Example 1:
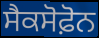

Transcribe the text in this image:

ਸੈਕਸੋਫ਼ੋਨ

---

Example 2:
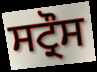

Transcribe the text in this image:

ਸਟ੍ਰੌਸ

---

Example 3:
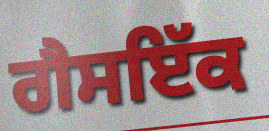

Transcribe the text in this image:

ਗੈਸਇੱਕ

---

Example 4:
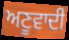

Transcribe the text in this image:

ਅਣੂਵਾਦੀ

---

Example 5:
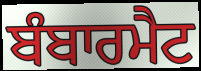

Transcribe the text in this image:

ਬੰਬਾਰਮੈਟ